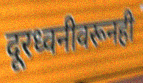
दूरध्वनीवरूनही